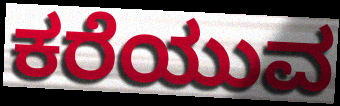
ಕರೆಯುವ